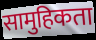
सामुहिकता